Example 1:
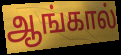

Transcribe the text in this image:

ஆங்கால்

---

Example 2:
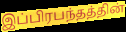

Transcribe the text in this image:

இப்பிரபந்தத்தின்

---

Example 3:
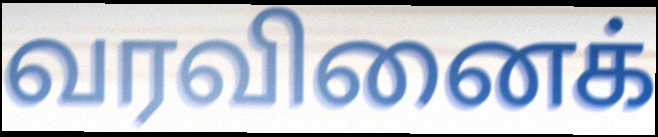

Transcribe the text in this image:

வரவினைக்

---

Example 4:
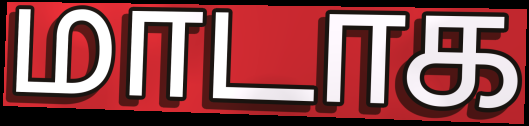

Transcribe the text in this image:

மாடாக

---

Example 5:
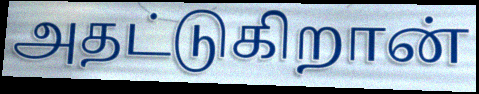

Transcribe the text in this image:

அதட்டுகிறான்